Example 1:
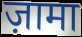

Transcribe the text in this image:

ज़ामा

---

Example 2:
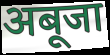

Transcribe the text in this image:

अबूजा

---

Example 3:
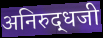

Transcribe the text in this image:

अनिरुद्धजी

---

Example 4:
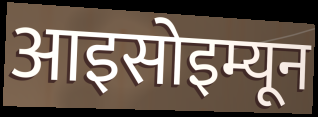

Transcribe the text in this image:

आइसोइम्यून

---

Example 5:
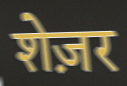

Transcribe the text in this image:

शेज़र